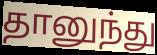
தானுந்து